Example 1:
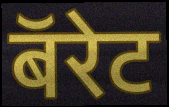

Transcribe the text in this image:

बॅरेट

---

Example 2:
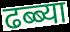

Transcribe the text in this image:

ढब्ब्या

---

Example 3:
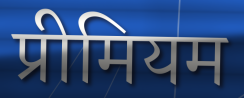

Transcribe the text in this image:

प्रीमियम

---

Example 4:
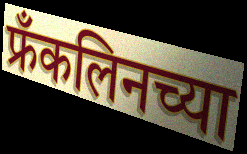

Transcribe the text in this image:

फ्रँकलिनच्या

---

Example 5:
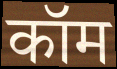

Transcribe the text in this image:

कॉम